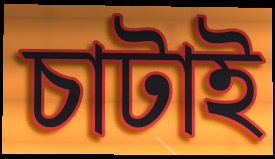
চাটাই